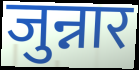
जुन्नार